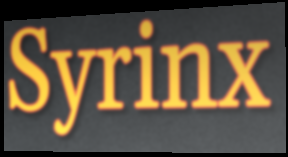
Syrinx